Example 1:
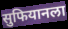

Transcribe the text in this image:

सुफियानला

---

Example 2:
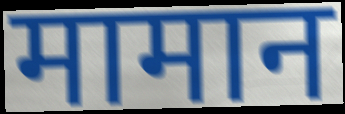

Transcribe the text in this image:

मामान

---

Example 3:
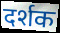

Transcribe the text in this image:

दर्शक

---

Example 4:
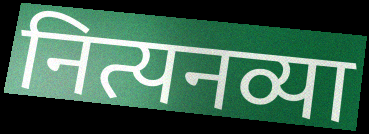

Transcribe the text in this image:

नित्यनव्या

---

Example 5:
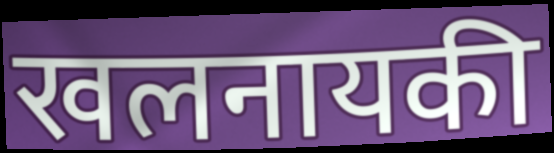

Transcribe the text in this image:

खलनायकी